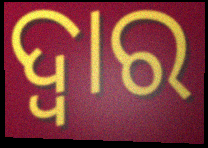
ଦ୍ବାର